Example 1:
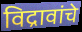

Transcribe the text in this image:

विद्रावांचे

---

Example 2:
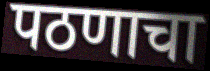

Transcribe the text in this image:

पठणाचा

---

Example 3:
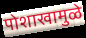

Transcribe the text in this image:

पोशाखामुळे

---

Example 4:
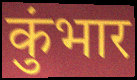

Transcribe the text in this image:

कुंभार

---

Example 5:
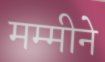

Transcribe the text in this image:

मम्मीने